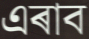
এৰাব